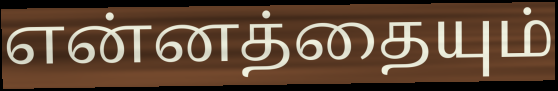
என்னத்தையும்